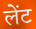
लेंट